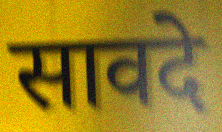
सावदे